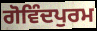
ਗੋਵਿੰਦਪੁਰਮ